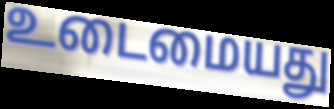
உடைமையது